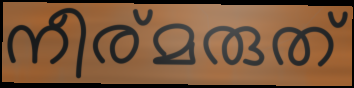
നീര്മരുത്